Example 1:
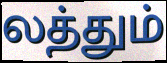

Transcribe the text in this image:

லத்தும்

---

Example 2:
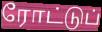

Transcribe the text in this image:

ரோட்டுப்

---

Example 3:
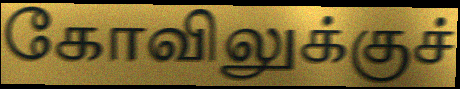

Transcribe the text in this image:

கோவிலுக்குச்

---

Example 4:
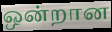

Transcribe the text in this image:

ஒன்றான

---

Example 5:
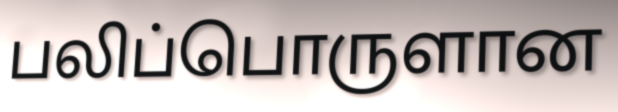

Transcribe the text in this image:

பலிப்பொருளான